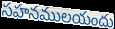
సహనములయందు